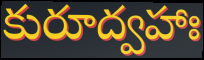
కురూద్వహాః